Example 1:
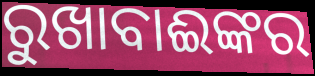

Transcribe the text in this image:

ରୁଖାବାଈଙ୍କର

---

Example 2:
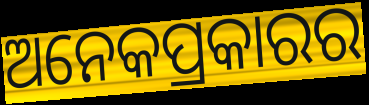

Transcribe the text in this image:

ଅନେକପ୍ରକାରର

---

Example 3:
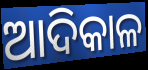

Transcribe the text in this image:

ଆଦିକାଳ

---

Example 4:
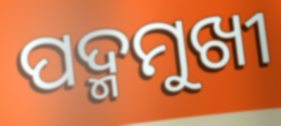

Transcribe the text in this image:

ପଦ୍ମମୁଖୀ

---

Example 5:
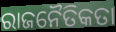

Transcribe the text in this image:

ରାଜନୈତିକତା